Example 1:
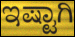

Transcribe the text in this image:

ಇಷ್ಟಾಗಿ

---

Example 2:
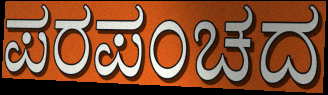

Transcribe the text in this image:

ಪರಪಂಚದ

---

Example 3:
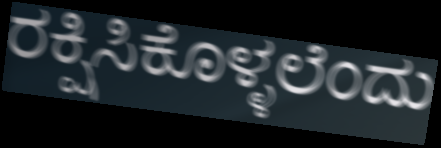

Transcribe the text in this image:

ರಕ್ಷಿಸಿಕೊಳ್ಳಲೆಂದು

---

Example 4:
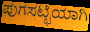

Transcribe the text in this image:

ಪುಗಸಟ್ಟೆಯಾಗಿ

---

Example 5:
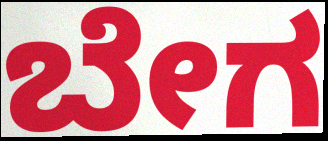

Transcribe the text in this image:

ಬೇಗ